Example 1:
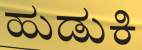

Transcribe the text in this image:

ಹುಡುಕಿ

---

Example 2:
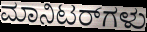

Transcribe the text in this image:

ಮಾನಿಟರ್‌ಗಳು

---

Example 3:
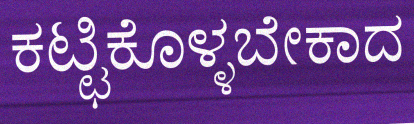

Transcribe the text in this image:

ಕಟ್ಟಿಕೊಳ್ಳಬೇಕಾದ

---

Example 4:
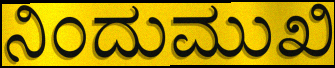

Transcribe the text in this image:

ನಿಂದುಮುಖಿ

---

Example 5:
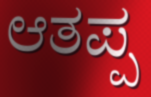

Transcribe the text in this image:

ಆತಪ್ಪ